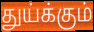
துய்க்கும்